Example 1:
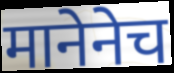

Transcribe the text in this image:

मानेनेच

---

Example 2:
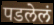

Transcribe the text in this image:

पडलेलं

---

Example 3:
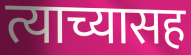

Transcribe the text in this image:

त्याच्यासह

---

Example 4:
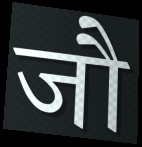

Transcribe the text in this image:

जौ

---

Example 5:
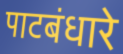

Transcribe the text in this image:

पाटबंधारे